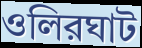
ওলিরঘাট